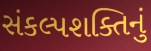
સંકલ્પશક્તિનું